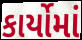
કાર્યોમાં